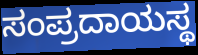
ಸಂಪ್ರದಾಯಸ್ಥ